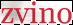
zvino